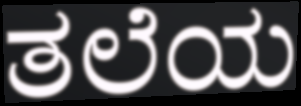
ತಲೆಯ